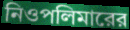
নিওপলিমারের